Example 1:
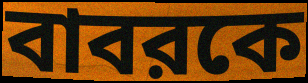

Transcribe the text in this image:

বাবরকে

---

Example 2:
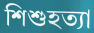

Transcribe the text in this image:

শিশুহত্যা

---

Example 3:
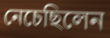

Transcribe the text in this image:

নেচেছিলেন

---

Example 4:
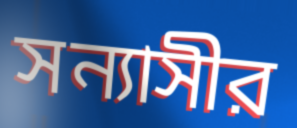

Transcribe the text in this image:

সন্যাসীর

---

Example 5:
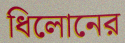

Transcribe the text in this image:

ধিলোনের